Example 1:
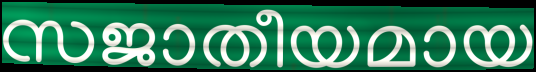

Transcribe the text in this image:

സജാതീയമായ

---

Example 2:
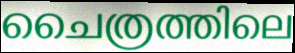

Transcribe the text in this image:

ചൈത്രത്തിലെ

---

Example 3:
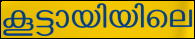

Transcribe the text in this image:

കൂട്ടായിയിലെ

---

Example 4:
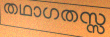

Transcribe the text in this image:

തഥാഗതസ്സ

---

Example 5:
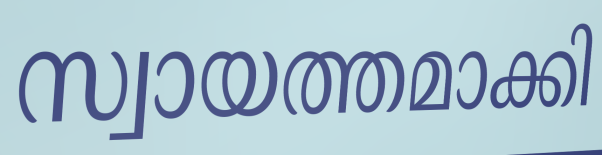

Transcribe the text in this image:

സ്വായത്തമാക്കി